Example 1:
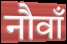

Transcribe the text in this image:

नौवाँ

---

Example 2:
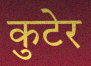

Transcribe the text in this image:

कुटेर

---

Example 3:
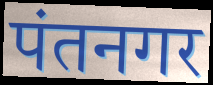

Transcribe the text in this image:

पंतनगर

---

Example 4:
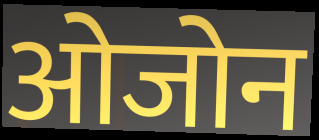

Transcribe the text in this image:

ओजोन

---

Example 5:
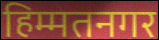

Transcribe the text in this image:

हिम्‍मतनगर